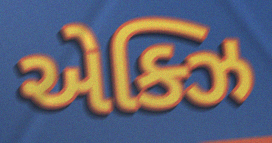
એક્ઝિ